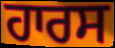
ਹਾਰਸ